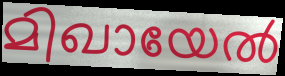
മിഖായേൽ